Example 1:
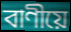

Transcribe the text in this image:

বাণীয়ে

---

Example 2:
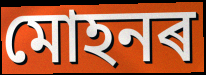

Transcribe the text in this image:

মোহনৰ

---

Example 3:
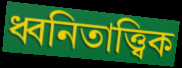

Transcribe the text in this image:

ধ্বনিতাত্ত্বিক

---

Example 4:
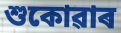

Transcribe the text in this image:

শুকোৱাৰ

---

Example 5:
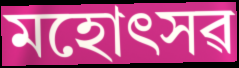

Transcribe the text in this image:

মহোৎসৱ